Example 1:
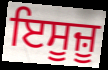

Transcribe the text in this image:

ਇਸੂਜ਼ੂ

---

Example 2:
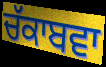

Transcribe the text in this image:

ਚੱਕਾਬਵਾ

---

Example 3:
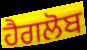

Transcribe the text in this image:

ਹੈਗਲੋਬ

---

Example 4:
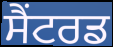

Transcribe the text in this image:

ਸੈਂਟਰਡ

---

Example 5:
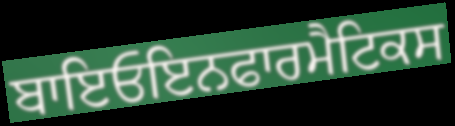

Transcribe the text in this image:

ਬਾਇਓਇਨਫਾਰਮੈਟਿਕਸ